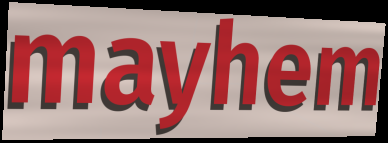
mayhem